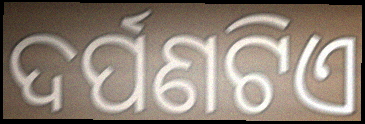
ଦର୍ପଣଟିଏ